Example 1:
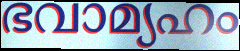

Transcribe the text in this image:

ഭവാമ്യഹം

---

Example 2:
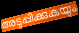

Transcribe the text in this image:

അടുപ്പിക്കുകയും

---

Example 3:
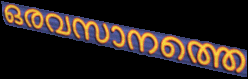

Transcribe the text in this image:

ഒരവസാനത്തെ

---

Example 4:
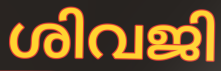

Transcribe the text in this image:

ശിവജി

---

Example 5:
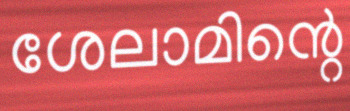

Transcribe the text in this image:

ശേലാമിന്റെ